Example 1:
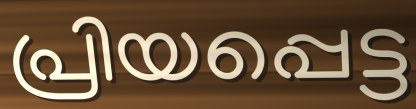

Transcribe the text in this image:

പ്രിയപ്പെട്ട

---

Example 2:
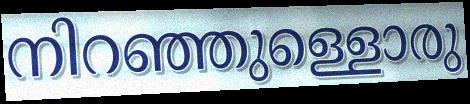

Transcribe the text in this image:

നിറഞ്ഞുള്ളൊരു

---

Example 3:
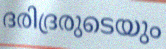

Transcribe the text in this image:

ദരിദ്രരുടെയും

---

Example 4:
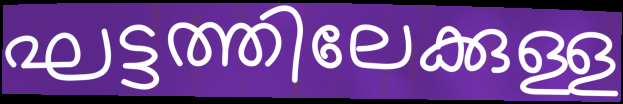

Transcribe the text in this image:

ഘട്ടത്തിലേക്കുള്ള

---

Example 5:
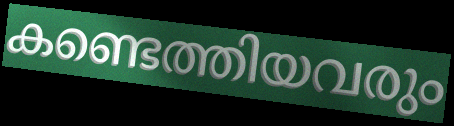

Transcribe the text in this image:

കണ്ടെത്തിയവരും